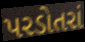
પરડોતરાં